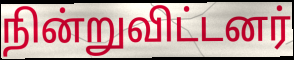
நின்றுவிட்டனர்